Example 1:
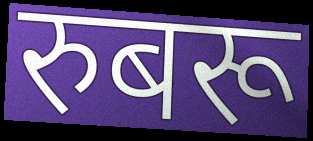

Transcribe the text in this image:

रुबरू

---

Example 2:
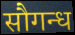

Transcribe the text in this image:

सौगन्ध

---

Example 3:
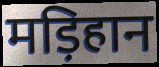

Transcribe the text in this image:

मड़िहान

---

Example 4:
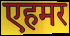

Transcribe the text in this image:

एहमर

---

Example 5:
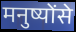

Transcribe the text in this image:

मनुष्योंसे